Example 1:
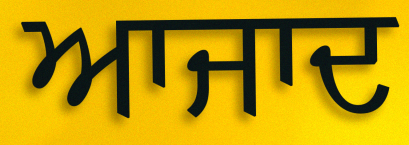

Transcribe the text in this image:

ਆਜਾਦ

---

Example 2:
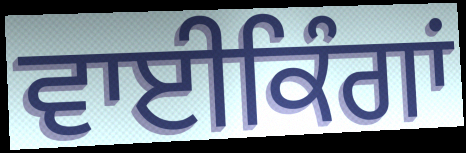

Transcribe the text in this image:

ਵਾਈਕਿੰਗਾਂ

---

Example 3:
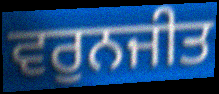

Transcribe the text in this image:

ਵਰੁਨਜੀਤ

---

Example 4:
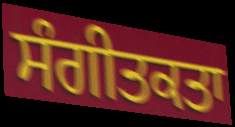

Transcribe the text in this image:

ਸੰਗੀਤਕਤਾ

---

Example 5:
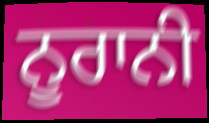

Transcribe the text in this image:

ਨੂਰਾਨੀ